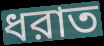
ধরাত